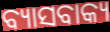
ବ୍ୟାସବାକ୍ୟ